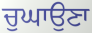
ਚੁਘਾਉਣਾ